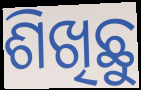
ଶିଖିଛୁ